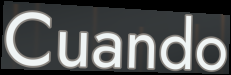
Cuando